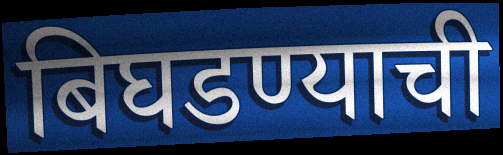
बिघडण्याची